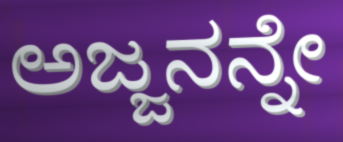
ಅಜ್ಜನನ್ನೇ